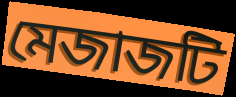
মেজাজটি